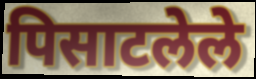
पिसाटलेले